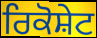
ਰਿਕੋਸ਼ੇਟ